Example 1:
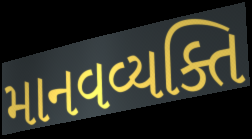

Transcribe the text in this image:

માનવવ્યક્તિ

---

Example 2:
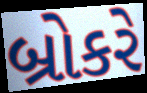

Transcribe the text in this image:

બ્રોકરે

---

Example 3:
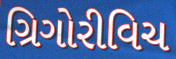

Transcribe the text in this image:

ગ્રિગોરીવિચ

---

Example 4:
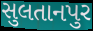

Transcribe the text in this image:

સુલતાનપુર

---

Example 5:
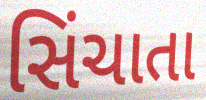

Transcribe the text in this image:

સિંચાતા